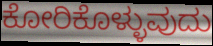
ಕೋರಿಕೊಳ್ಳುವುದು